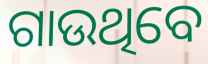
ଗାଉଥିବେ